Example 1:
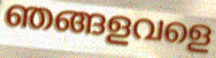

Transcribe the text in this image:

ഞങ്ങളവളെ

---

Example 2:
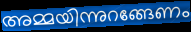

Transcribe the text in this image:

അമ്മയിന്നുറങ്ങേണം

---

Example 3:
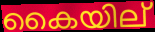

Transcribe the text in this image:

കൈയില്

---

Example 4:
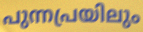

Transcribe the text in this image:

പുന്നപ്രയിലും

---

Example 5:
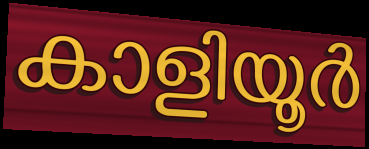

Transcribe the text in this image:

കാളിയൂർ